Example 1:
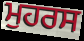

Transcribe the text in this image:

ਮੁਹਰਸ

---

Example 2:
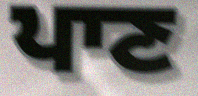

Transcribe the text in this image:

ਪਾਣ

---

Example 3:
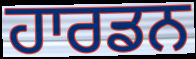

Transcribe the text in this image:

ਹਾਰਡਨ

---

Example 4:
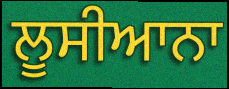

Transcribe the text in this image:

ਲੂਸੀਆਨਾ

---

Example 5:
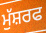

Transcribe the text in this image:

ਮੁੱਸ਼ਰਫ